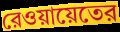
রেওয়ায়েতের